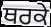
ਥਰਕੇ